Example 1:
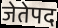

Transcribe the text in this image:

जेतेपद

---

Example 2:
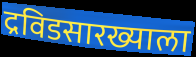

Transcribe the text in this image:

द्रविडसारख्याला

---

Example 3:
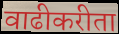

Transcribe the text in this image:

वाढीकरीता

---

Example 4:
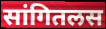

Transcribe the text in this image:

सांगितलस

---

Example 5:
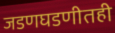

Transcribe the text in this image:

जडणघडणीतही